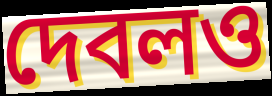
দেবলও